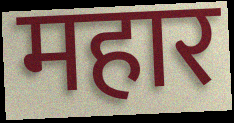
महार